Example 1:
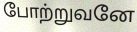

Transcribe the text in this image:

போற்றுவனே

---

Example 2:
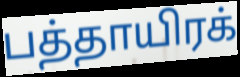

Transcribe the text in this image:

பத்தாயிரக்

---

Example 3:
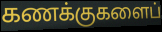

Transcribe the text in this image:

கணக்குகளைப்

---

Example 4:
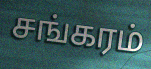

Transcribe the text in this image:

சங்கரம்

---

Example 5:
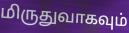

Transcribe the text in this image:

மிருதுவாகவும்